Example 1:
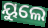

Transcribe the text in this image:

ୟୁଲେ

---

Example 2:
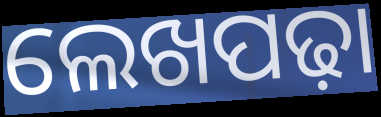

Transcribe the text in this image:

ଲେଖପଢ଼ା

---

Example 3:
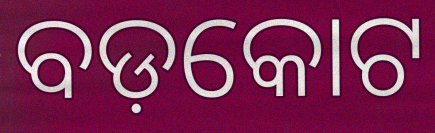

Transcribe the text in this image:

ବଡ଼କୋଟ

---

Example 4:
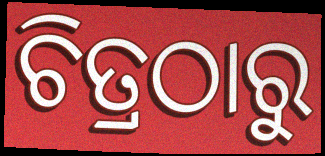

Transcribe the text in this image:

ଚିତ୍ରଠାରୁ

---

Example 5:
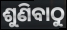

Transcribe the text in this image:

ଶୁଣିବାଠୁ